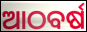
ଆଠବର୍ଷ